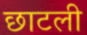
छाटली